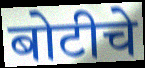
बोटीचे